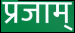
प्रजाम्